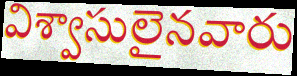
విశ్వాసులైనవారు